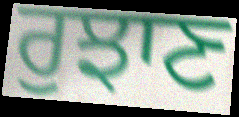
ਰੁਝਾਣ